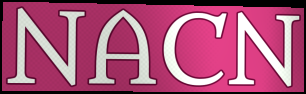
NACN